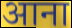
आना